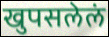
खुपसलेलं